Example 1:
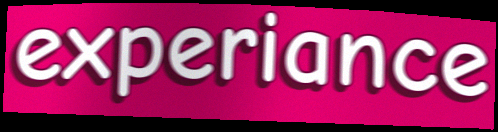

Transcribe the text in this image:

experiance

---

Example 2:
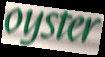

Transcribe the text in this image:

oyster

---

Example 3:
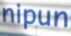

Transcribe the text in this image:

nipun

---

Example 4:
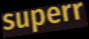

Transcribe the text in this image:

superr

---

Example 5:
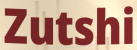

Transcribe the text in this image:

Zutshi